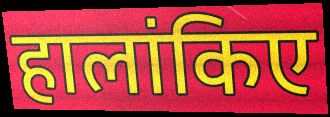
हालांकिए